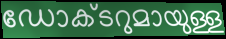
ഡോക്ടറുമായുള്ള